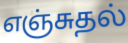
எஞ்சுதல்